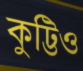
কুট্টিও